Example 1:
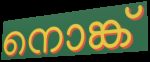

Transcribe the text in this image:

നൊങ്ക്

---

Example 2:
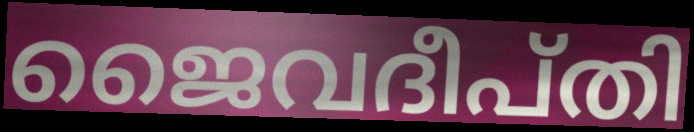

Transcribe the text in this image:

ജൈവദീപ്തി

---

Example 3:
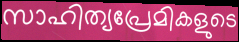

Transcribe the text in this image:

സാഹിത്യപ്രേമികളുടെ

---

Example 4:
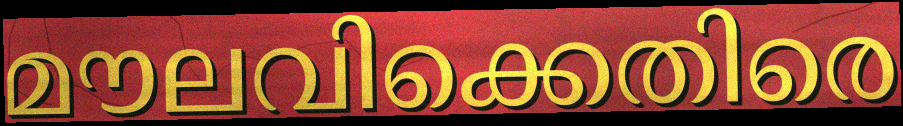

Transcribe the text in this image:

മൗലവിക്കെതിരെ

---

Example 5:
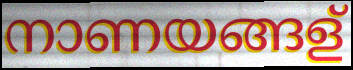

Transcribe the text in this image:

നാണയങ്ങള്